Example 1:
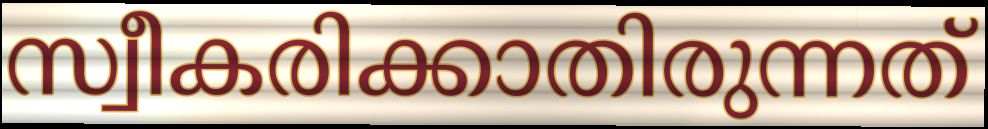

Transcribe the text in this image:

സ്വീകരിക്കാതിരുന്നത്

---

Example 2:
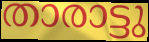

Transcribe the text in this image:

താരാട്ടു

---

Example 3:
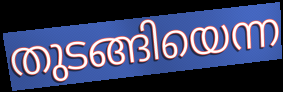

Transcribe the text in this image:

തുടങ്ങിയെന്ന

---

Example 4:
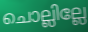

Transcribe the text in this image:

ചൊല്ലില്ലേ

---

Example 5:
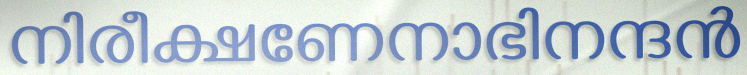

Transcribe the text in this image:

നിരീക്ഷണേനാഭിനന്ദൻ